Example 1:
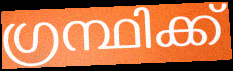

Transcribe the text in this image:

ഗ്രന്ഥിക്ക്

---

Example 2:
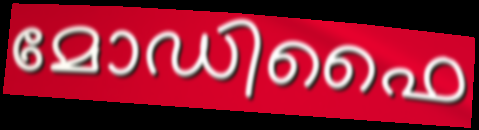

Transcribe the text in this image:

മോഡിഫൈ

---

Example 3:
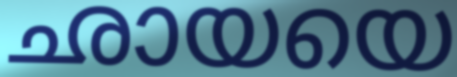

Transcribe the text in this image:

ഛായയെ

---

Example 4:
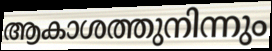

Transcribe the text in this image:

ആകാശത്തുനിന്നും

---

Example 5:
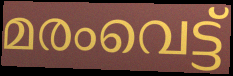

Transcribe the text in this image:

മരംവെട്ട്